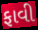
ફાવી